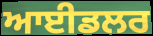
ਆਈਡਲਰ